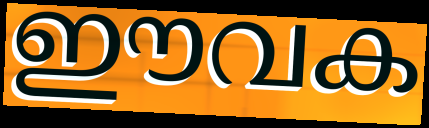
ഈവക